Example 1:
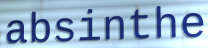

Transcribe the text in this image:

absinthe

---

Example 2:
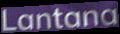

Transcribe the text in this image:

Lantana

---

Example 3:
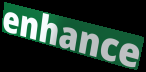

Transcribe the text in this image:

enhance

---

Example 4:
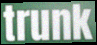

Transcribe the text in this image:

trunk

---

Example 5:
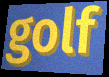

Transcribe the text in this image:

golf